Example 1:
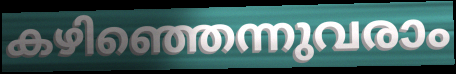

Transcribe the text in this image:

കഴിഞ്ഞെന്നുവരാം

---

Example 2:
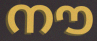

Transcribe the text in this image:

നൗ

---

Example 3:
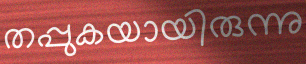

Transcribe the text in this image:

തപ്പുകയായിരുന്നു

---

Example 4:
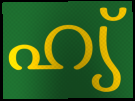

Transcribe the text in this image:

ഹ്യ്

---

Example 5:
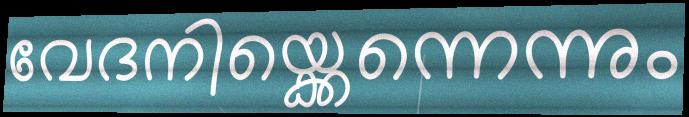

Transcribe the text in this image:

വേദനിയ്ക്കെന്നെന്നും